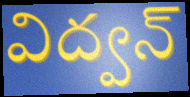
విద్వన్